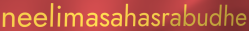
neelimasahasrabudhe